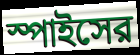
স্পাইসের